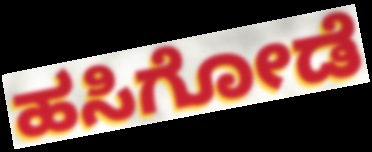
ಹಸಿಗೋಡೆ